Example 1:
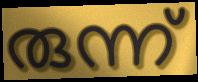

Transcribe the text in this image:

രുന്ന്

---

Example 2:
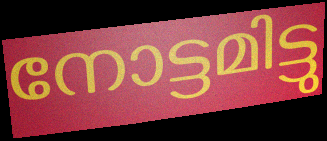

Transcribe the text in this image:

നോട്ടമിട്ടു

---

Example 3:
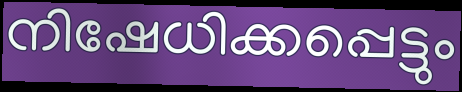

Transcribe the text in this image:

നിഷേധിക്കപ്പെട്ടും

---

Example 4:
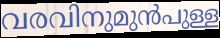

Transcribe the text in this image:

വരവിനുമുൻപുള്ള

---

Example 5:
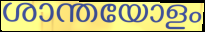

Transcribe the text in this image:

ശാന്തയോളം